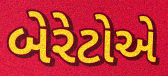
બેરેટોએ